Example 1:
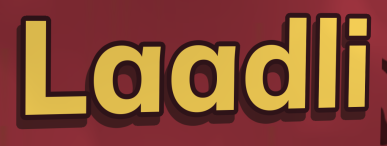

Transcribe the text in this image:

Laadli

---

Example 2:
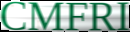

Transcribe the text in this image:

CMFRI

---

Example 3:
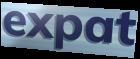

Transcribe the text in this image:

expat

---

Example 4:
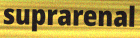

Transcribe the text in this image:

suprarenal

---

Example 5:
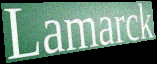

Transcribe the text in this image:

Lamarck